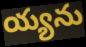
య్యను